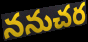
ననుచర